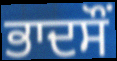
ਭਾਦਸੌਂ